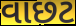
વાછટ